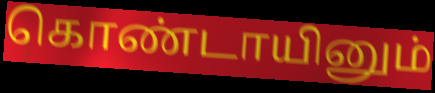
கொண்டாயினும்